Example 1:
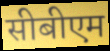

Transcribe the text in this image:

सीबीएम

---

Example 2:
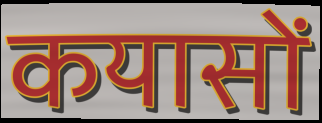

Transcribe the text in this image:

कयासों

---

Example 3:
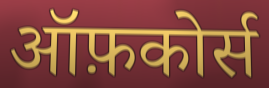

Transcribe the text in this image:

ऑफ़कोर्स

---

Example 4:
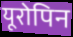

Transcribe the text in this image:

यूरोपिन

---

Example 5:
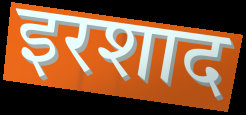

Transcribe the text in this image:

इरशाद